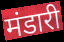
मंडारी